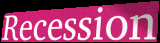
Recession